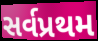
સર્વપ્રથમ